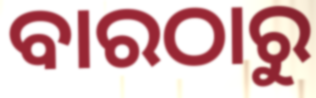
ବାରଠାରୁ